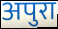
अपुरा